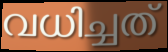
വധിച്ചത്